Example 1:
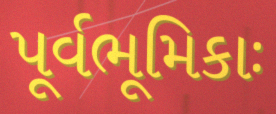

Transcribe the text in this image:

પૂર્વભૂમિકાઃ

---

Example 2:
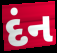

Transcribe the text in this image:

દંન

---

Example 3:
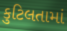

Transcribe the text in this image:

કુટિલતામાં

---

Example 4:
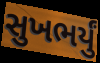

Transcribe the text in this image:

સુખભર્યું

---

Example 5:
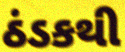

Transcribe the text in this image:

ઠંડકથી